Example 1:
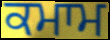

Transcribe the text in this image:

ਕਮਾਮ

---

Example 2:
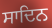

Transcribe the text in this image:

ਸਾਦਿਨ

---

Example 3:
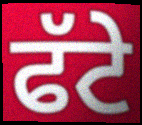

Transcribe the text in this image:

ਫੱਟੇ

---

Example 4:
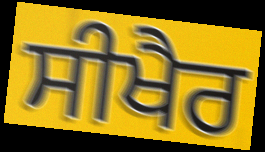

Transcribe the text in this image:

ਸੀਖੈਰ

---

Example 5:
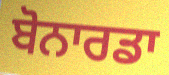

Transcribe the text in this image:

ਬੋਨਾਰਡਾ